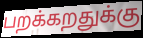
பறக்கறதுக்கு